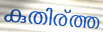
കുതിര്ത്ത